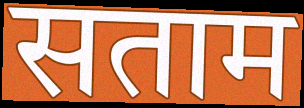
सताम